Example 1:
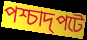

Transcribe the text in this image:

পশ্চাদ্‌পটে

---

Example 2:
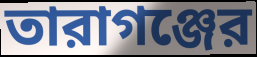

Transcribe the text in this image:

তারাগঞ্জের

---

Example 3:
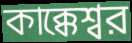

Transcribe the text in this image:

কাক্কেশ্বর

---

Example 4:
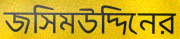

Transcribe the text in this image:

জসিমউদ্দিনের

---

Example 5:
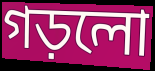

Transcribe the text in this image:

গড়লো